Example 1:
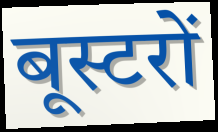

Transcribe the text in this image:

बूस्टरों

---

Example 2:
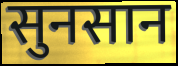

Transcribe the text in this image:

सुनसान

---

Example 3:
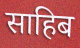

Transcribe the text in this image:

साहिब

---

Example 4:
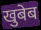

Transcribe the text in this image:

खुबेब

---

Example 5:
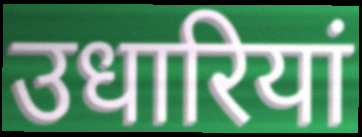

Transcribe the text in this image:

उधारियां